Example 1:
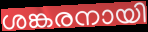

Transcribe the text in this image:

ശങ്കരനായി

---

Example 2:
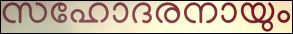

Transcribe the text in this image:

സഹോദരനായും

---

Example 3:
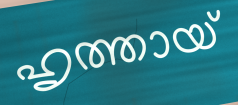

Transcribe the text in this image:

ഹൃത്തായ്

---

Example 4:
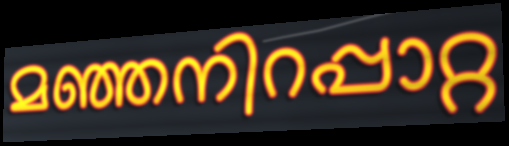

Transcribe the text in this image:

മഞ്ഞനിറപ്പാറ്റ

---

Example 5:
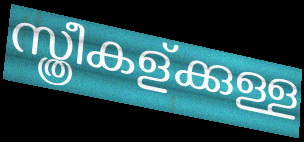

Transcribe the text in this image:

സ്ത്രീകള്ക്കുള്ള